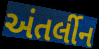
અંતર્લીન